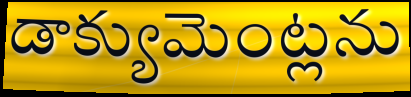
డాక్యుమెంట్లను